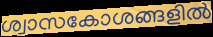
ശ്വാസകോശങ്ങളിൽ